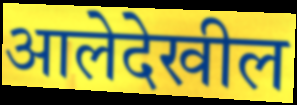
आलेदेखील